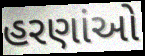
હરણાંઓ